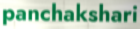
panchakshari